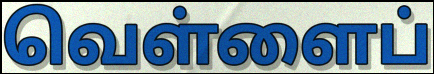
வெள்ளைப்